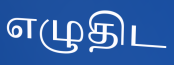
எழுதிட